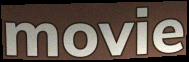
movie